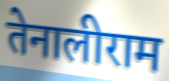
तेनालीराम